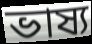
ভাষ্য